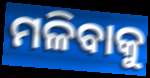
ମଳିବାକୁ